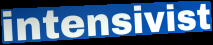
intensivist